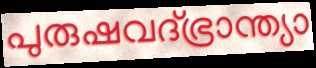
പുരുഷവദ്ഭ്രാന്ത്യാ